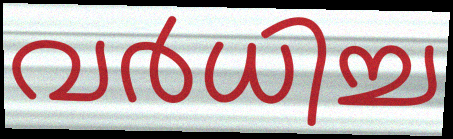
വർധിച്ച